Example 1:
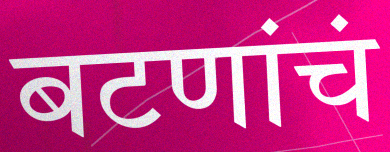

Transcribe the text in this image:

बटणांचं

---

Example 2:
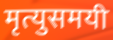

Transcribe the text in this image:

मृत्युसमयी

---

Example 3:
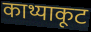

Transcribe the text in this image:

काथ्याकूट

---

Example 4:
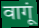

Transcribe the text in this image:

वागूं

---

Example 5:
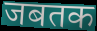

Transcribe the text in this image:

जबतक